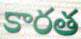
కారత